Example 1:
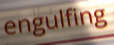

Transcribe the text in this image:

engulfing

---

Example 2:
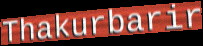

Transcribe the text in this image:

Thakurbarir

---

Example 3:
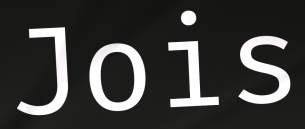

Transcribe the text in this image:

Jois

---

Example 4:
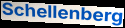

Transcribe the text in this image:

Schellenberg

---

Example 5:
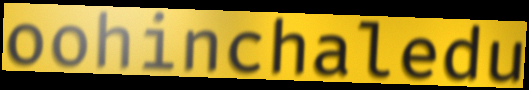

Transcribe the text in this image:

oohinchaledu